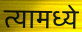
त्यामध्ये